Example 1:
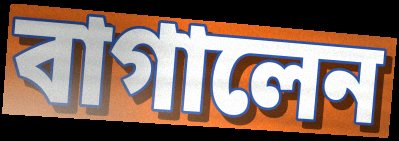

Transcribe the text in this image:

বাগালেন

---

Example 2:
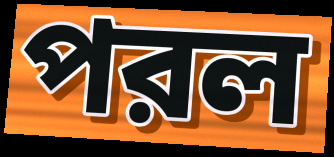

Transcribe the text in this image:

পরল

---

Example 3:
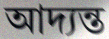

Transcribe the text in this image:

আদ্যন্ত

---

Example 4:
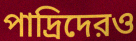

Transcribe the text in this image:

পাদ্রিদেরও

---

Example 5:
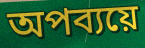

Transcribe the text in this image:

অপব্যয়ে